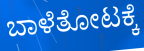
ಬಾಳೆತೋಟಕ್ಕೆ